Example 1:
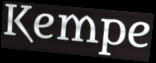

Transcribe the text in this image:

Kempe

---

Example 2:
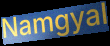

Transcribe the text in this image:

Namgyal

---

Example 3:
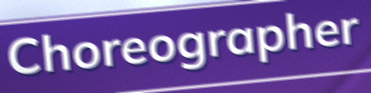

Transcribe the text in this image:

Choreographer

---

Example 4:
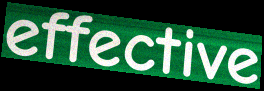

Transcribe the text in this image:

effective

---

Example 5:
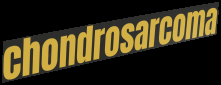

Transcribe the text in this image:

chondrosarcoma